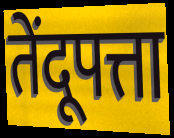
तेंदूपत्ता